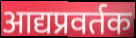
आद्यप्रवर्तक